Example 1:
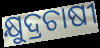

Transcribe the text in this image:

କ୍ଷୁଦ୍ରଚାଷୀ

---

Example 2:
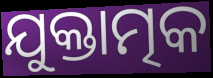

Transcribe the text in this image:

ଯୁକ୍ତାତ୍ମକ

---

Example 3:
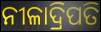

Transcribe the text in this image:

ନୀଳାଦ୍ରିପତି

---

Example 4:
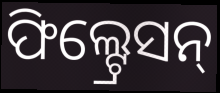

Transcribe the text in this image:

ଫିଲ୍ଟ୍ରେସନ୍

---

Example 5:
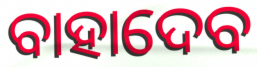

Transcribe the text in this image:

ବାହାଦେବ